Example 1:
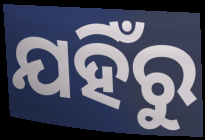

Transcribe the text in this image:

ଯହିଁରୁ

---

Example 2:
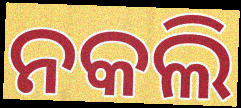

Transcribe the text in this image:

ନକଲି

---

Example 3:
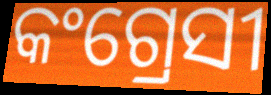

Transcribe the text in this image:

କଂଗ୍ରେସୀ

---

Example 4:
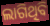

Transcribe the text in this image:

ଲାଗିଥିବି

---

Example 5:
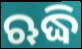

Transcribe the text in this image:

ଋଦ୍ଧି